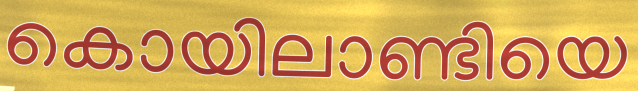
കൊയിലാണ്ടിയെ